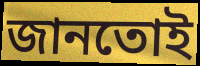
জানতোই